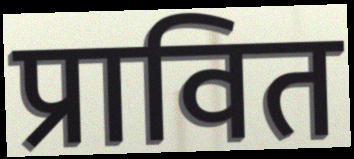
प्रावित